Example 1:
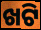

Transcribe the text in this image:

ଖଟି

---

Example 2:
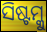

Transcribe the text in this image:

ସିଷ୍ଟମ୍କୁ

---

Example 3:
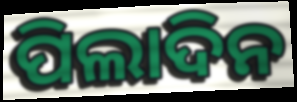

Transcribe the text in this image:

ପିଲାଦିନ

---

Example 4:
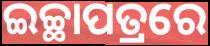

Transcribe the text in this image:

ଇଚ୍ଛାପତ୍ରରେ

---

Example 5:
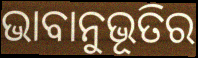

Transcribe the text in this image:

ଭାବାନୁଭୂତିର